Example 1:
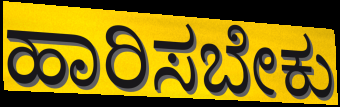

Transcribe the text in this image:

ಹಾರಿಸಬೇಕು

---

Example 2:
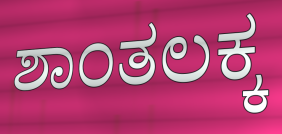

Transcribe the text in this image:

ಶಾಂತಲಕ್ಕ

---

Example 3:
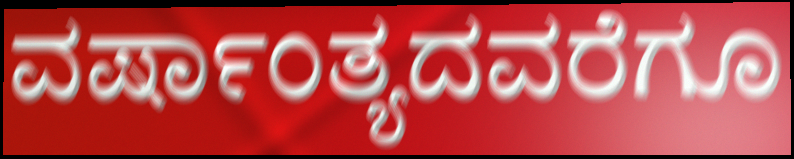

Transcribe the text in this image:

ವರ್ಷಾಂತ್ಯದವರೆಗೂ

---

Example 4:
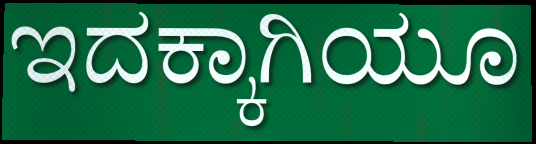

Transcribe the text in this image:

ಇದಕ್ಕಾಗಿಯೂ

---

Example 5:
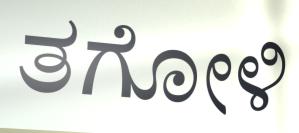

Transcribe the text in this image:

ತಗೋಳಿ